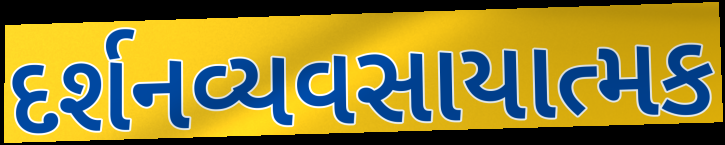
દર્શનવ્યવસાયાત્મક